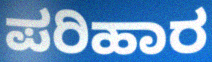
ಪರಿಹಾರ